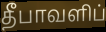
தீபாவளிப்